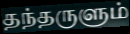
தந்தருளும்